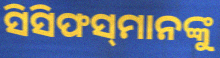
ସିସିଫସ୍‌ମାନଙ୍କୁ